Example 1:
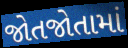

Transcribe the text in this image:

જોતજોતામાં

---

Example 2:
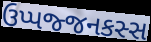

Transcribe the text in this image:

ઉપ્પજ્જનકસ્સ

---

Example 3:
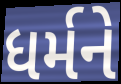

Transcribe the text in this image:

ધર્મને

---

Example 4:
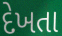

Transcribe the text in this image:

દેખતા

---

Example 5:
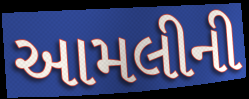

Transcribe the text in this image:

આમલીની